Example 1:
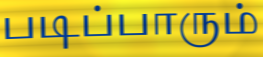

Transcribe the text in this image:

படிப்பாரும்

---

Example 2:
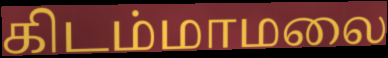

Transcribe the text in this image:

கிடம்மாமலை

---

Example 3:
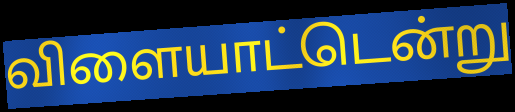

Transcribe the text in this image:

விளையாட்டென்று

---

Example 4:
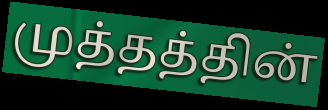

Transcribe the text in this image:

முத்தத்தின்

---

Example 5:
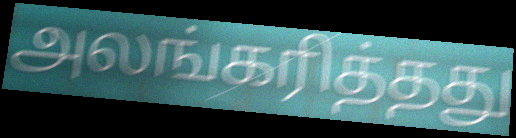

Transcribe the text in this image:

அலங்கரித்தது